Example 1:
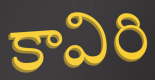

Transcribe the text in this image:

కావిరి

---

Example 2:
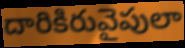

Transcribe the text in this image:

దారికిరువైపులా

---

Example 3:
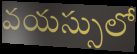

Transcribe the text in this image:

వయస్సులో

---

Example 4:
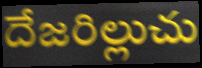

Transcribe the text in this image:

దేజరిల్లుచు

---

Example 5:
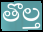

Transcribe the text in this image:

తొల్త